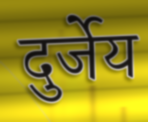
दुर्जेय